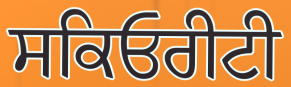
ਸਕਿਓਰੀਟੀ